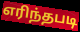
எரிந்தபடி